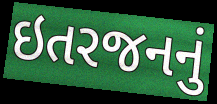
ઇતરજનનું